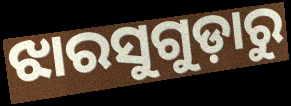
ଝାରସୁଗୁଡ଼ାରୁ